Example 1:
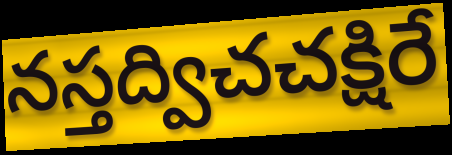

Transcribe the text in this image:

నస్తద్విచచక్షిరే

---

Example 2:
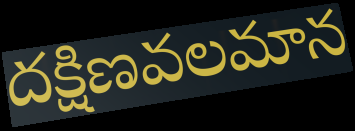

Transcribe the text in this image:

దక్షిణవలమాన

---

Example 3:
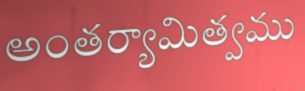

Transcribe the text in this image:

అంతర్యామిత్వము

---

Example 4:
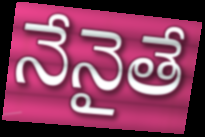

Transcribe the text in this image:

నేనైతే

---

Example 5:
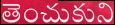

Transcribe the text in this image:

తెంచుకుని